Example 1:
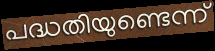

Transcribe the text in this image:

പദ്ധതിയുണ്ടെന്ന്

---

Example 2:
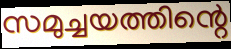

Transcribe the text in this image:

സമുച്ചയത്തിന്റെ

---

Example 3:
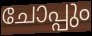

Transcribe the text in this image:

ചോപ്പും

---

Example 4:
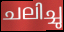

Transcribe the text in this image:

ചലിച്ചു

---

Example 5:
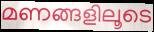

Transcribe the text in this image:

മണങ്ങളിലൂടെ